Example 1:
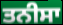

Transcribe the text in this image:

ਤਨੀਸਾ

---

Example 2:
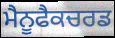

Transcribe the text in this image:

ਮੈਨੂਫੈਕਚਰਡ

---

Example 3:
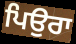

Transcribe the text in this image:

ਪਿਉਰਾ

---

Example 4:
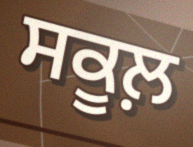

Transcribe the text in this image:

ਸਕੂਲ਼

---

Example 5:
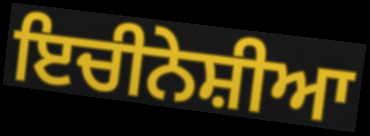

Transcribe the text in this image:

ਇਚੀਨੇਸ਼ੀਆ